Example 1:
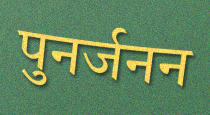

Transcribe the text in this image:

पुनर्जनन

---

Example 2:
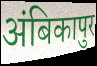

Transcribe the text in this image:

अंबिकापुर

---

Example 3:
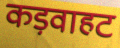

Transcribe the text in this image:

कड़वाहट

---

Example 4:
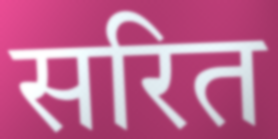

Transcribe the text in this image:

सरित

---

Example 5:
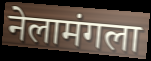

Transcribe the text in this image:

नेलामंगला